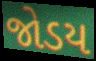
જોડય